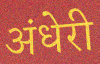
अंधेरी